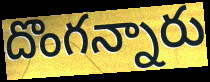
దొంగన్నారు